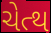
ચેત્થ